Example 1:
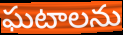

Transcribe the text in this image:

ఘటాలను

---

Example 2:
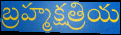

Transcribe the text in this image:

బ్రహ్మక్షత్రియ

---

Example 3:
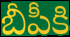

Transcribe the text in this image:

బీపీకి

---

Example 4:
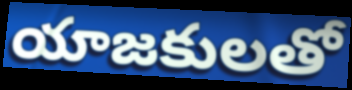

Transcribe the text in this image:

యాజకులతో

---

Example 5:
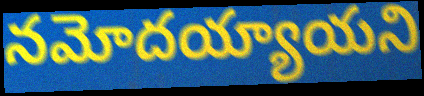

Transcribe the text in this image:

నమోదయ్యాయని